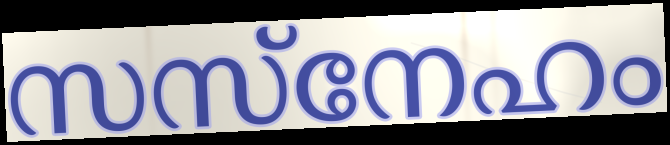
സസ്നേഹം